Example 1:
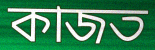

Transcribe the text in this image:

কাজত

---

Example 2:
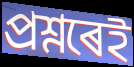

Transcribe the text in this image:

প্ৰশ্নৰেই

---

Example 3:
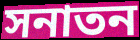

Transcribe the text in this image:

সনাতন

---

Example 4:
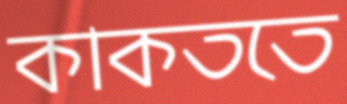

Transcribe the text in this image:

কাকততে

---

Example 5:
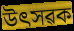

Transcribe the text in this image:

উৎসৱক